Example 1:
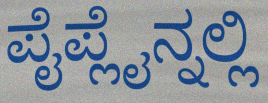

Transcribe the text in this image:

ಪೈಪ್ಲೈನ್ನಲ್ಲಿ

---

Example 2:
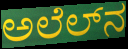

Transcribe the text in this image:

ಅಲೆಲ್‌ನ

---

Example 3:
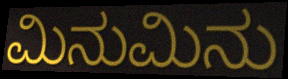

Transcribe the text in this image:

ಮಿನುಮಿನು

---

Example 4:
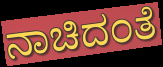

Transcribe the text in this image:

ನಾಚಿದಂತೆ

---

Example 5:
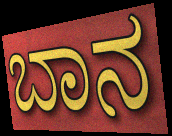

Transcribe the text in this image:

ಬಾನ